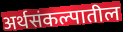
अर्थसंकल्पातील